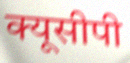
क्यूसीपी